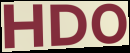
HDO